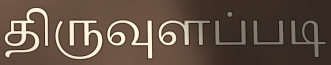
திருவுளப்படி